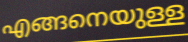
എങ്ങനെയുള്ള